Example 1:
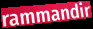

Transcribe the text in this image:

rammandir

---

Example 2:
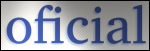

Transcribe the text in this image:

oficial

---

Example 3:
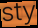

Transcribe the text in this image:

sty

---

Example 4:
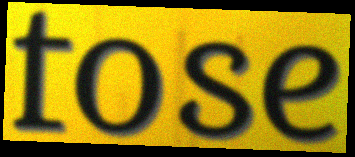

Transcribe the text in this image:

tose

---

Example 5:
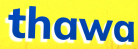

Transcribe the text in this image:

thawa